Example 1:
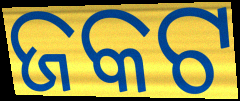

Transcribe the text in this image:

ଜକଟ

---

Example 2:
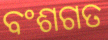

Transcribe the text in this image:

ବଂଶଗତ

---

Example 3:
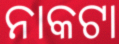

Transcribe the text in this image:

ନାକଟା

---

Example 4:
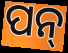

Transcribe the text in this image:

ପନ୍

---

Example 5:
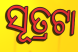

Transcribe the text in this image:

ସୂତ୍ରଟା